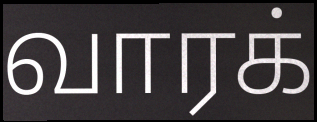
வாரக்